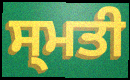
ਸ੍ਮਤੀ